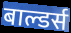
बाल्डर्स